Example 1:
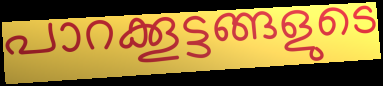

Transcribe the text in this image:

പാറക്കൂട്ടങ്ങളുടെ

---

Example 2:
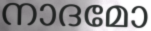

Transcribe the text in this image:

നാദമോ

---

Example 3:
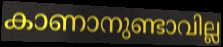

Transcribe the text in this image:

കാണാനുണ്ടാവില്ല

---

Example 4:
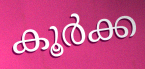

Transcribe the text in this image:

കൂർക്ക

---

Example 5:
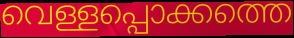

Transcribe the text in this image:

വെള്ളപ്പൊക്കത്തെ